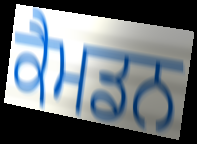
ਕੈਮਡਨ